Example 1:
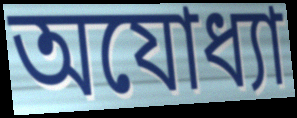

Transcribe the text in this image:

অযোধ্যা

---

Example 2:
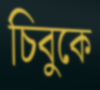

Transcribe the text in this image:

চিবুকে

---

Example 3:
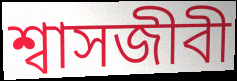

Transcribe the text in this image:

শ্বাসজীবী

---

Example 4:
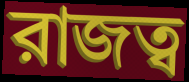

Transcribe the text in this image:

রাজত্ব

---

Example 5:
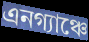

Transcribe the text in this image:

এনগ্যাঞ্চে